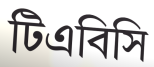
টিএবিসি